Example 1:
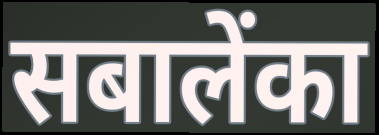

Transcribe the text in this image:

सबालेंका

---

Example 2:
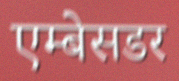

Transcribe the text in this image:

एम्बेसडर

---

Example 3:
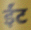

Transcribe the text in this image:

ईंट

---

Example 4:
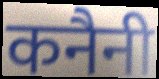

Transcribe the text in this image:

कनैनी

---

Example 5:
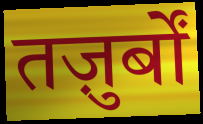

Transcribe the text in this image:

तज़ुर्बों